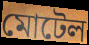
মোটেল